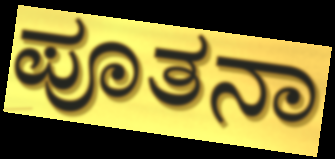
ಪೂತನಾ